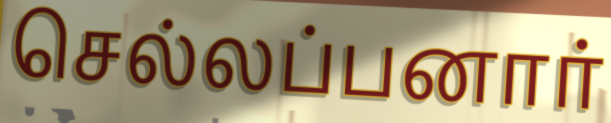
செல்லப்பனார்